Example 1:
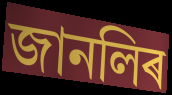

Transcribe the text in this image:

জানলিৰ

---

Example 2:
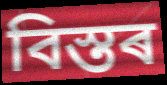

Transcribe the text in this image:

বিস্তৰ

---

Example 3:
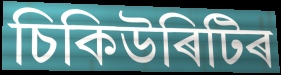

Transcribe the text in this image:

চিকিউৰিটিৰ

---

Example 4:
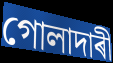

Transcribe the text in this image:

গোলাদাৰী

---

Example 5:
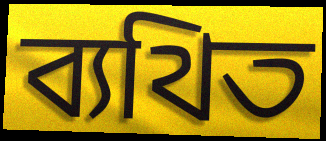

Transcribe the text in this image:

ব্যথিত